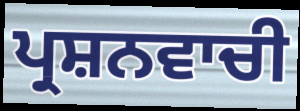
ਪ੍ਰਸ਼ਨਵਾਚੀ